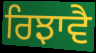
ਰਿਝਾਵੈ